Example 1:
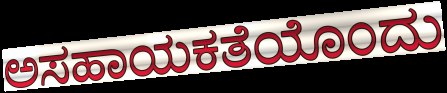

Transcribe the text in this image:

ಅಸಹಾಯಕತೆಯೊಂದು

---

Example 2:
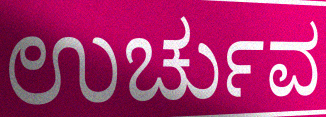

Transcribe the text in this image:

ಉರ್ಚುವ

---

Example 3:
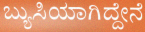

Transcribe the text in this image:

ಬ್ಯುಸಿಯಾಗಿದ್ದೇನೆ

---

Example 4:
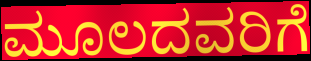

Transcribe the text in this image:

ಮೂಲದವರಿಗೆ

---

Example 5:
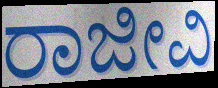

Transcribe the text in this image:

ರಾಜೀವಿ